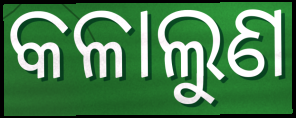
କଳାଲୁଣ